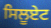
ਸਿਲੂਏਟ